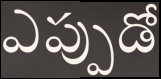
ఎప్పుడో